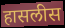
हासलीस